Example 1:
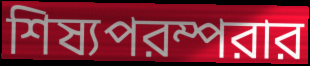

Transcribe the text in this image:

শিষ্যপরম্পরার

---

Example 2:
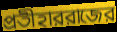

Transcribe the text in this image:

প্রতীহাররাজের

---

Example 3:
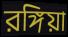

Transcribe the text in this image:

রঙ্গিয়া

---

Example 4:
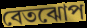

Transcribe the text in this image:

বেতঝোপ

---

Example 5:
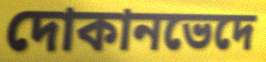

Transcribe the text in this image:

দোকানভেদে